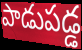
పాడుపడ్డ